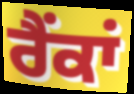
ਰੈਂਕਾਂ